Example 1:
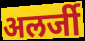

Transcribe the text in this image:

अलर्जी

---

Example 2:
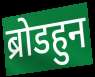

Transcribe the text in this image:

ब्रोडहुन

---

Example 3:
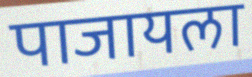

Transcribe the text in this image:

पाजायला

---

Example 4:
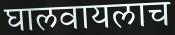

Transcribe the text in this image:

घालवायलाच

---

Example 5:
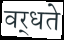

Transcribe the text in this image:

वर्धते